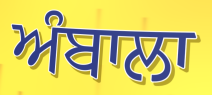
ਅੰਬਾਲਾ